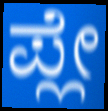
ಪ್ಲೇ